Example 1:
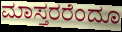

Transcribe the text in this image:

ಮಾಸ್ತರರೆಂದೂ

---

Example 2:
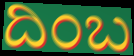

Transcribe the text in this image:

ದಿಂಬ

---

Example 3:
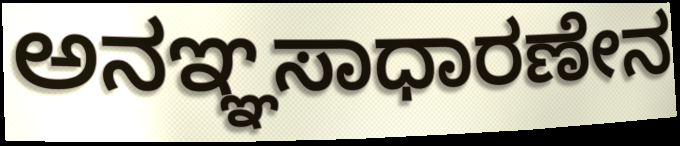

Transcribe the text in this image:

ಅನಞ್ಞಸಾಧಾರಣೇನ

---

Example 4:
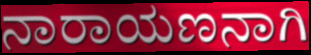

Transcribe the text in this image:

ನಾರಾಯಣನಾಗಿ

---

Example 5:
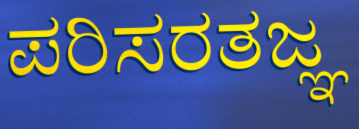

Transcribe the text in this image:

ಪರಿಸರತಜ್ಞ